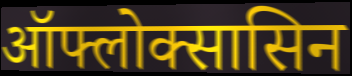
ऑफ्लोक्सासिन